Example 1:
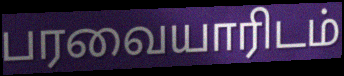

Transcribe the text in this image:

பரவையாரிடம்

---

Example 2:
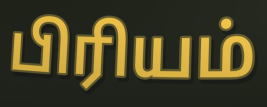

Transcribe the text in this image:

பிரியம்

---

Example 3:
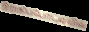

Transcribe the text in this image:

இறுதிப்போட்டியில்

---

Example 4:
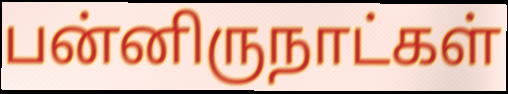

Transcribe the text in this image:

பன்னிருநாட்கள்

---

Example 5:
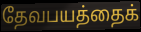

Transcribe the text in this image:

தேவபயத்தைக்